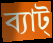
ব্যাট্